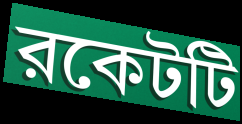
রকেটটি